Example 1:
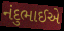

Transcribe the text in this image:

નંદુભાઈએ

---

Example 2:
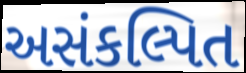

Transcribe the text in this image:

અસંકલ્પિત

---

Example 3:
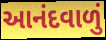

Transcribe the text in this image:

આનંદવાળું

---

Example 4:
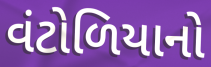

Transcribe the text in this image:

વંટોળિયાનો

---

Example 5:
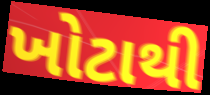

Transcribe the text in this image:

ખોટાથી